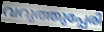
വറുത്തുപ്പേരി